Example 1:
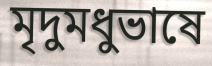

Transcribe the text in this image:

মৃদুমধুভাষে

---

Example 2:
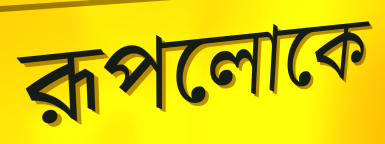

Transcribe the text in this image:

রূপলোকে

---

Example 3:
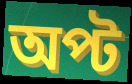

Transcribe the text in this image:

অপ্ট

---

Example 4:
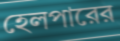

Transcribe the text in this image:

হেলপারের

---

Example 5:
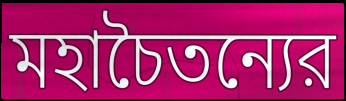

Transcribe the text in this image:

মহাচৈতন্যের